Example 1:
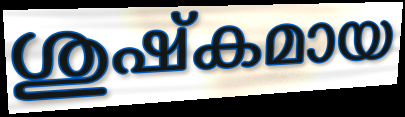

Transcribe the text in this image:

ശുഷ്‌കമായ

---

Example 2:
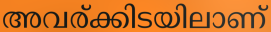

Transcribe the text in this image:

അവര്ക്കിടയിലാണ്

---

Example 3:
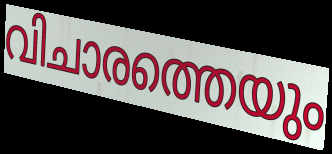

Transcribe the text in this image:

വിചാരത്തെയും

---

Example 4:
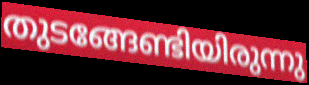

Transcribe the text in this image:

തുടങ്ങേണ്ടിയിരുന്നു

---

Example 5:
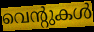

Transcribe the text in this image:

വെന്റുകൾ